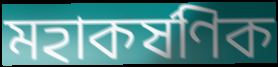
মহাকৰ্ষণিক